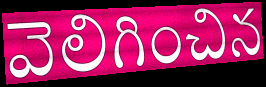
వెలిగించిన